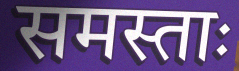
समस्ताः